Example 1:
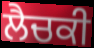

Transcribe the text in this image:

ਲੈਚਕੀ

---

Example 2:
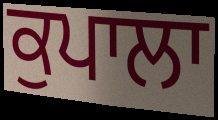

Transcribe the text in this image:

ਕੁਪਾਲਾ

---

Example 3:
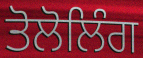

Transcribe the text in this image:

ਤੋਲੋਲਿੰਗ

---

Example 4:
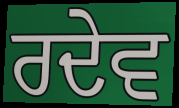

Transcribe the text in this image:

ਰਦੇਵ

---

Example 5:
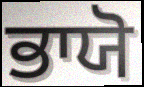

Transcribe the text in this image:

ਭਾਯੋ